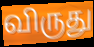
விருது